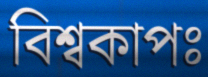
বিশ্বকাপঃ